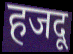
हजदू